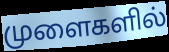
முளைகளில்